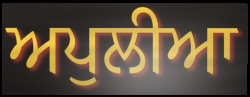
ਅਪੁਲੀਆ